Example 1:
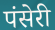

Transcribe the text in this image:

पंसेरी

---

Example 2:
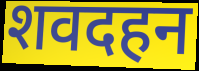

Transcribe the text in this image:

शवदहन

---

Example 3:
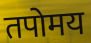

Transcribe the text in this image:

तपोमय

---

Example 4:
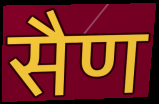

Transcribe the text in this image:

सैण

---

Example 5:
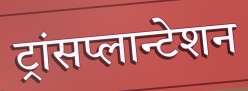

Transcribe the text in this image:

ट्रांसप्लान्टेशन